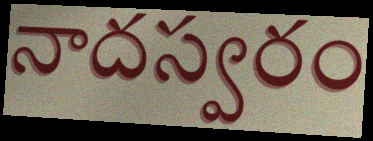
నాదస్వరం